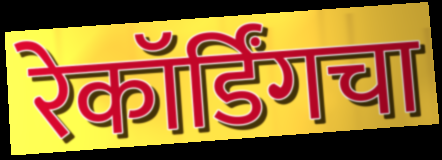
रेकॉर्डिंगचा